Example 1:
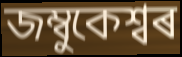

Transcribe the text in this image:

জম্বুকেশ্বৰ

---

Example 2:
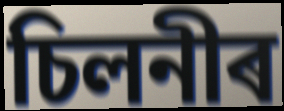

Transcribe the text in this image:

চিলনীৰ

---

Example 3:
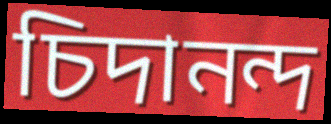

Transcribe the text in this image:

চিদানন্দ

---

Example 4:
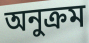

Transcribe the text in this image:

অনুক্ৰম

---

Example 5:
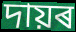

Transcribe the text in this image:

দায়ৰ